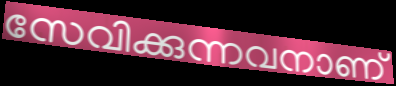
സേവിക്കുന്നവനാണ്